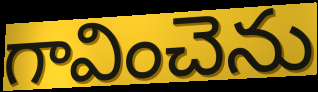
గావించెను